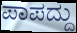
ಪಾಪದ್ದು